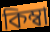
কিম্বা